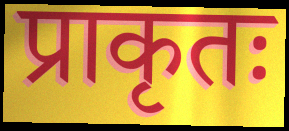
प्राकृतः